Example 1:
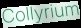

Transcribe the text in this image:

Collyrium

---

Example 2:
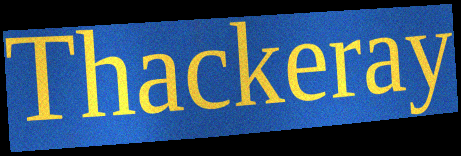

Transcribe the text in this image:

Thackeray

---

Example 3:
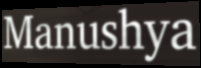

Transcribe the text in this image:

Manushya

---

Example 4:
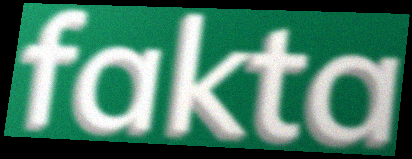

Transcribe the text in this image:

fakta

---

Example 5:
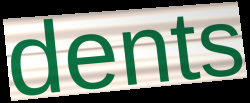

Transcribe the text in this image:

dents